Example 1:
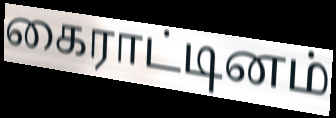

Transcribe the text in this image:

கைராட்டினம்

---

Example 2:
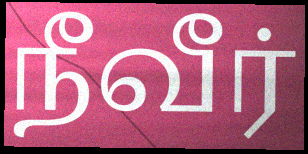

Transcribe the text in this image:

நீவீர்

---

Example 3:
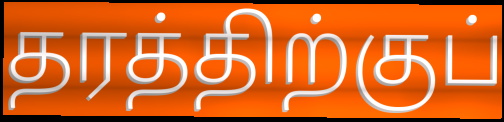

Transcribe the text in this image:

தரத்திற்குப்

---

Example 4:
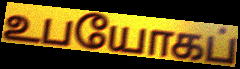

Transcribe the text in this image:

உபயோகப்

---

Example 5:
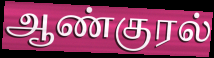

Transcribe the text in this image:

ஆண்குரல்